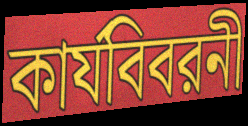
কার্যবিবরনী